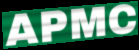
APMC